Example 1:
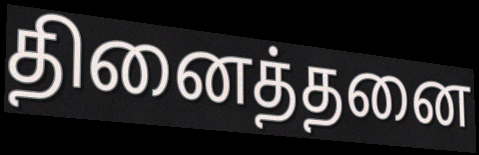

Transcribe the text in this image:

தினைத்தனை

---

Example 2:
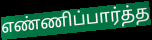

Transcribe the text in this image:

எண்ணிப்பார்த்த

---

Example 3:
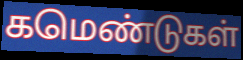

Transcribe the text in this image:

கமெண்டுகள்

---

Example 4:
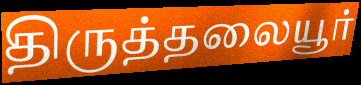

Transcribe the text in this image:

திருத்தலையூர்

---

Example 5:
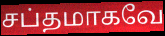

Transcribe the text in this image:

சப்தமாகவே